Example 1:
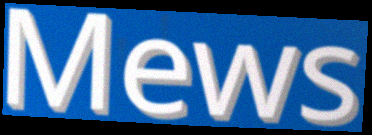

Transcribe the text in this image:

Mews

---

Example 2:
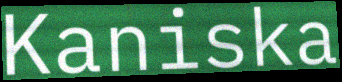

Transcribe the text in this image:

Kaniska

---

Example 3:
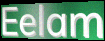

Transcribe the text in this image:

Eelam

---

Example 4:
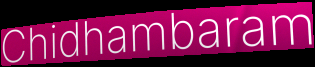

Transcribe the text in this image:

Chidhambaram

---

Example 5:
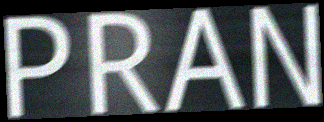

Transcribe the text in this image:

PRAN